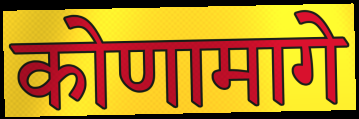
कोणामागे